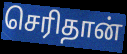
செரிதான்